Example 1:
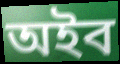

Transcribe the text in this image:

অইব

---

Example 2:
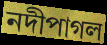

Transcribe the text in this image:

নদীপাগল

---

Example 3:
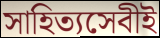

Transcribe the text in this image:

সাহিত্যসেবীই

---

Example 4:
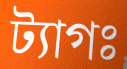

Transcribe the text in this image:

ট্যাগঃ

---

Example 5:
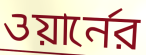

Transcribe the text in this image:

ওয়ার্নের